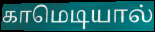
காமெடியால்